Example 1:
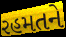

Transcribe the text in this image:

રહમતને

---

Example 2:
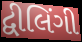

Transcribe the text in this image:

દ્વીલિંગી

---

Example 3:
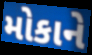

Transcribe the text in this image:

મોકાને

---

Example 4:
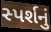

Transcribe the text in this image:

સ્પર્શનું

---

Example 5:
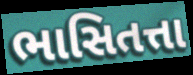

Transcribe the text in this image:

ભાસિતત્તા